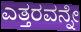
ಎತ್ತರವನ್ನೇ